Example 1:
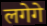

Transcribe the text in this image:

लगेगे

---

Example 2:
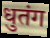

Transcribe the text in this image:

धुतंग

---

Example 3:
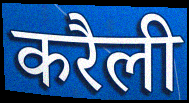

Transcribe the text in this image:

करैली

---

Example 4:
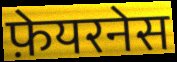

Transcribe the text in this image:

फ़ेयरनेस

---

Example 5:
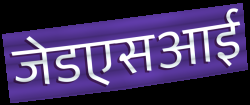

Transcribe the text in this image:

जेडएसआई